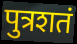
पुत्रशतं